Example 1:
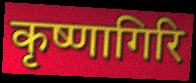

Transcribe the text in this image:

कृष्णागिरि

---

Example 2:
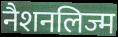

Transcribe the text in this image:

नैशनलिज्म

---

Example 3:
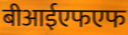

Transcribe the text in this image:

बीआईएफएफ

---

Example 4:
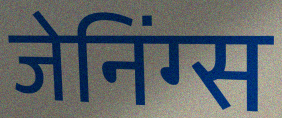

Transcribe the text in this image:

जेनिंग्स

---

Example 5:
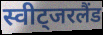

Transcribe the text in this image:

स्वीट्जरलैंड